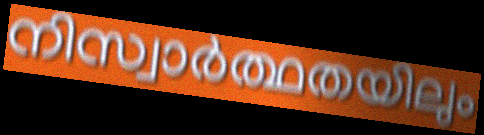
നിസ്വാർത്ഥതയിലും